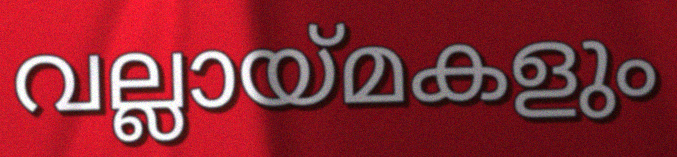
വല്ലായ്മകളും